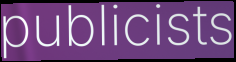
publicists